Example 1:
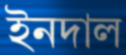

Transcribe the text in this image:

ইনদাল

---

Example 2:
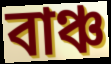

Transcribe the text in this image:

বাঞ্চ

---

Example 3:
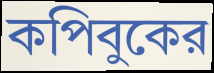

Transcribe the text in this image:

কপিবুকের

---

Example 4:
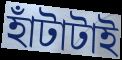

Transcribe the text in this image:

হাঁটাটাই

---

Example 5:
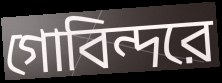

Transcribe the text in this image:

গোবিন্দরে